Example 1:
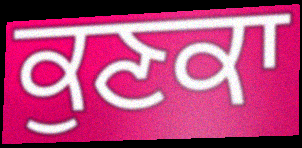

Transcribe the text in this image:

ਕੁਣਕਾ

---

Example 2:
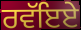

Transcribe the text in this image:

ਰਵੱਇਏ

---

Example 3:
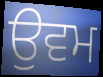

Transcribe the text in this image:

ਉਵਮ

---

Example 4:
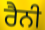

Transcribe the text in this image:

ਰੈਨੀ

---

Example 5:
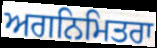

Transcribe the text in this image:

ਅਗਨਿਮਿਤਰਾ